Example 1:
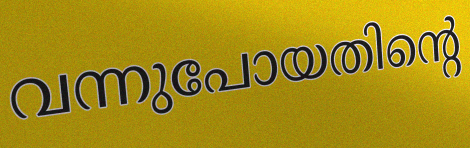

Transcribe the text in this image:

വന്നുപോയതിന്റെ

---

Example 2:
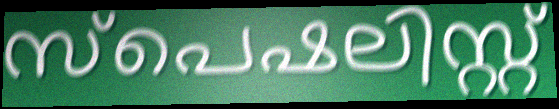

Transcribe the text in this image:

സ്പെഷലിസ്റ്റ്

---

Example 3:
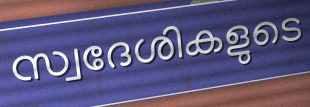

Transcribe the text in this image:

സ്വദേശികളുടെ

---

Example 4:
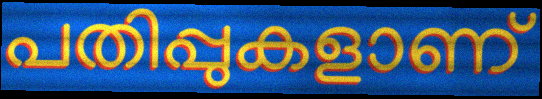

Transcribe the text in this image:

പതിപ്പുകളാണ്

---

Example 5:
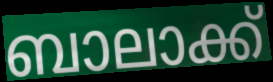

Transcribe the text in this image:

ബാലാക്ക്